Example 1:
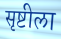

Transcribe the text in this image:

सृष्टीला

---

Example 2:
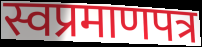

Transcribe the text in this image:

स्वप्रमाणपत्र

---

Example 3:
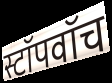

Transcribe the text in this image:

स्टॉपवॉच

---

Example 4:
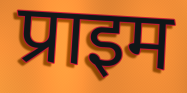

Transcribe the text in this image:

प्राइम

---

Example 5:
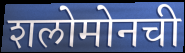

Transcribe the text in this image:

शलोमोनची